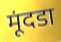
मूंदडा